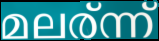
മലര്ന്ന്